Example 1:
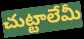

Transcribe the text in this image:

చుట్టాలేమీ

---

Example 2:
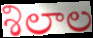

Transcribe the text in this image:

శిలాల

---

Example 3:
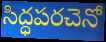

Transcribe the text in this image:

సిద్ధపరచెనో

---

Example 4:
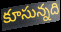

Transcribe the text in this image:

కూసున్నది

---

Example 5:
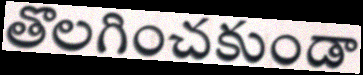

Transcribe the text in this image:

తొలగించకుండా